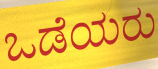
ಒಡೆಯರು